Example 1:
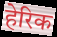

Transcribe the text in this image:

हेरिक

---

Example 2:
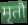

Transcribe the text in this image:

मृतौ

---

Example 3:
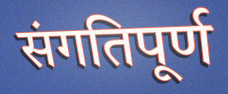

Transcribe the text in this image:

संगतिपूर्ण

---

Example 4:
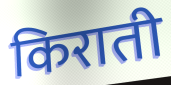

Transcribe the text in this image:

किराती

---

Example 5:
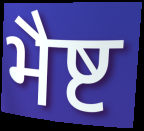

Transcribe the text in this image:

भैष्ट